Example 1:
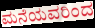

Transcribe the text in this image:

ಮನೆಯವರಿಂದ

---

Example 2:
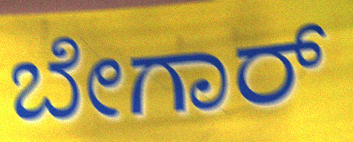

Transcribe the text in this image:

ಬೇಗಾರ್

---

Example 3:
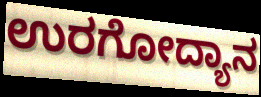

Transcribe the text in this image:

ಉರಗೋದ್ಯಾನ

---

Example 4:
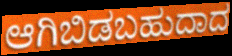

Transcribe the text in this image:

ಆಗಿಬಿಡಬಹುದಾದ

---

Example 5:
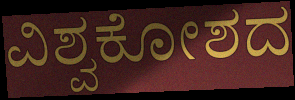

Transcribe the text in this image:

ವಿಶ್ವಕೋಶದ